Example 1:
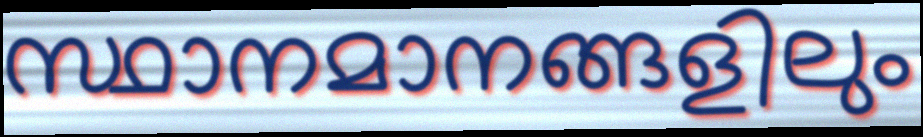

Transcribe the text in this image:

സ്ഥാനമാനങ്ങളിലും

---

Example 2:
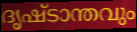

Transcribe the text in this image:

ദൃഷ്ടാന്തവും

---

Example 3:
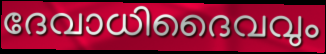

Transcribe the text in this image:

ദേവാധിദൈവവും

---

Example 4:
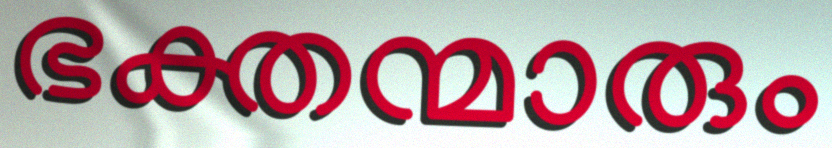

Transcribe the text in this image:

ഭക്തന്മാരും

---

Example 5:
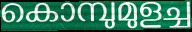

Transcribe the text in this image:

കൊമ്പുമുളച്ച